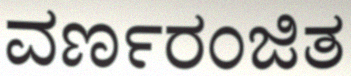
ವರ್ಣರಂಜಿತ